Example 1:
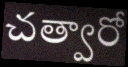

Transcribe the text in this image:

చత్వారో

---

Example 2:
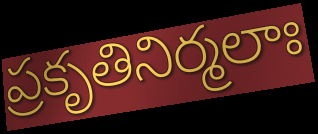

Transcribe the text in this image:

ప్రకృతినిర్మలాః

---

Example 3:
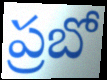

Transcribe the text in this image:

ప్రబో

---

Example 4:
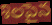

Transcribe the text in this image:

శిలపైన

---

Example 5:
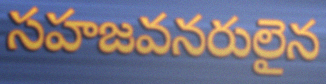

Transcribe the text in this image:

సహజవనరులైన